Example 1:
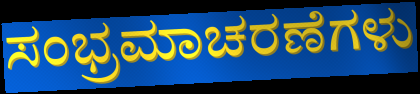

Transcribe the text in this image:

ಸಂಭ್ರಮಾಚರಣೆಗಳು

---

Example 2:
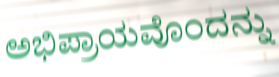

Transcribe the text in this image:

ಅಭಿಪ್ರಾಯವೊಂದನ್ನು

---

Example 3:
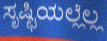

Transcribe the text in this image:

ಸೃಷ್ಟಿಯಲ್ಲೆಲ್ಲ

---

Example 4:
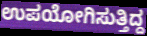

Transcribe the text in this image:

ಉಪಯೋಗಿಸುತ್ತಿದ್ದ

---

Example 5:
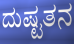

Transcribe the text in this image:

ದುಷ್ಟತನ